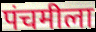
पंचमीला